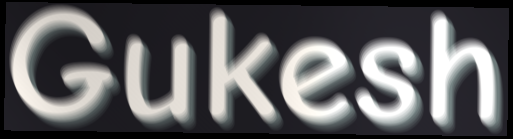
Gukesh